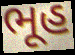
ભૂહ